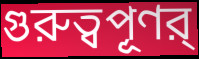
গুরুত্বপূণর্